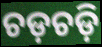
ଚଡ଼ଚଡ଼ି